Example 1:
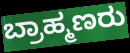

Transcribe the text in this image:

ಬ್ರಾಹ್ಮಣರು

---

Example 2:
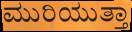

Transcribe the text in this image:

ಮುರಿಯುತ್ತಾ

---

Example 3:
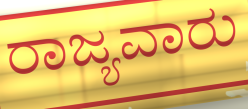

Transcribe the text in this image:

ರಾಜ್ಯವಾರು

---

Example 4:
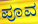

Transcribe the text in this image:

ಪೂವ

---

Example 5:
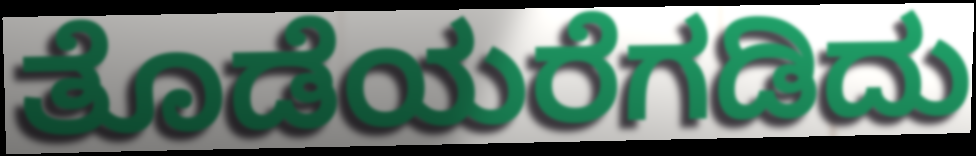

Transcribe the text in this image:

ತೊಡೆಯರೆಗಡಿದು